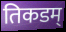
तिकडम्